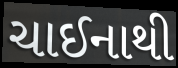
ચાઈનાથી